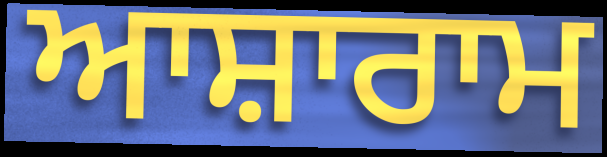
ਆਸ਼ਾਰਾਮ